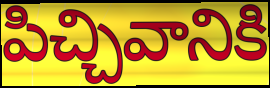
పిచ్చివానికి